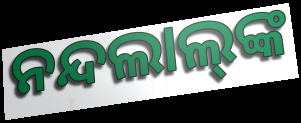
ନନ୍ଦଲାଲ୍‌ଙ୍କ